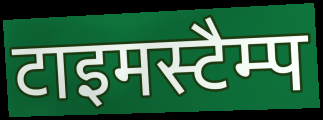
टाइमस्टैम्प